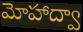
మోహాద్వా